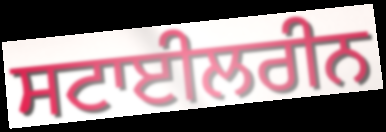
ਸਟਾਈਲਰੀਨ